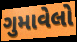
ગુમાવેલો